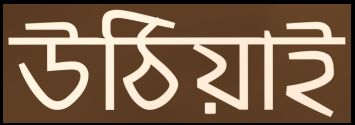
উঠিয়াই